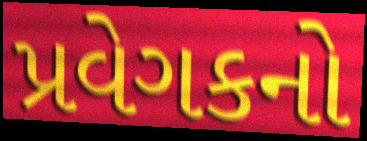
પ્રવેગકનો